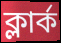
ক্লাৰ্ক